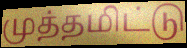
முத்தமிட்டு